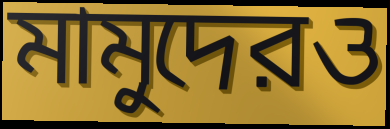
মামুদেরও